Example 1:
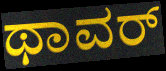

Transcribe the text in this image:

ಥಾವರ್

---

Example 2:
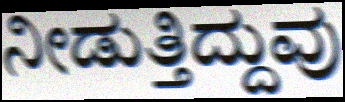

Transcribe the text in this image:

ನೀಡುತ್ತಿದ್ದುವು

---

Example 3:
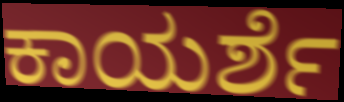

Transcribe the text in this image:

ಕಾಯರ್ಶೆ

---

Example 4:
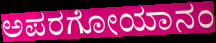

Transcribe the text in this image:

ಅಪರಗೋಯಾನಂ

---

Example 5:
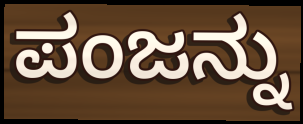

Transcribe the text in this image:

ಪಂಜನ್ನು